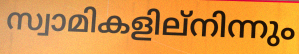
സ്വാമികളില്നിന്നും